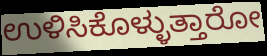
ಉಳಿಸಿಕೊಳ್ಳುತ್ತಾರೋ